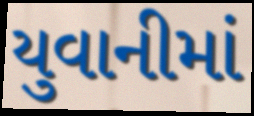
યુવાનીમાં